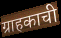
ग्राहकाची